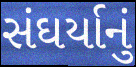
સંઘર્યાનું